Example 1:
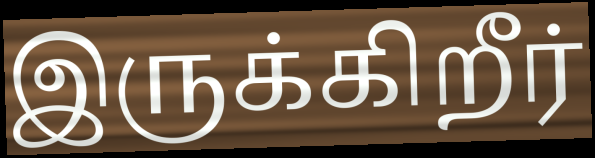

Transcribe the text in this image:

இருக்கிறீர்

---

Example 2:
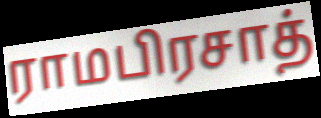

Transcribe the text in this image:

ராமபிரசாத்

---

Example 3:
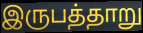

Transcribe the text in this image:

இருபத்தாறு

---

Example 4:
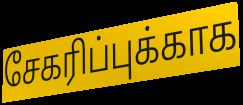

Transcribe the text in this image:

சேகரிப்புக்காக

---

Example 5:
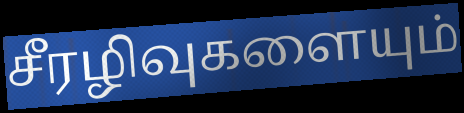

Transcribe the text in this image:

சீரழிவுகளையும்